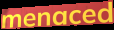
menaced